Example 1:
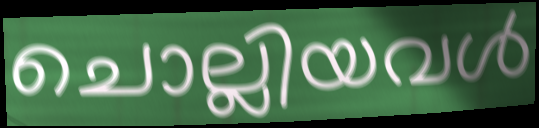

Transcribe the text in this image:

ചൊല്ലിയവൾ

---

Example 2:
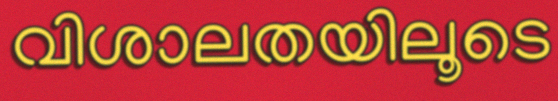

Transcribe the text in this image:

വിശാലതയിലൂടെ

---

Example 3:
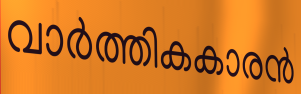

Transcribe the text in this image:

വാർത്തികകാരൻ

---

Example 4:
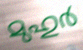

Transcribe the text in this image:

മുഹുർ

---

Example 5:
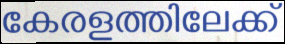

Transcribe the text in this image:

കേരളത്തിലേക്ക്